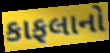
કાફલાનો